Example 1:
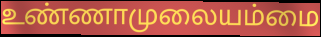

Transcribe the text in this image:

உண்ணாமுலையம்மை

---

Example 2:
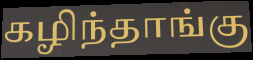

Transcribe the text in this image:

கழிந்தாங்கு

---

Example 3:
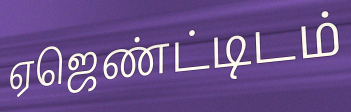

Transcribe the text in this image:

ஏஜெண்ட்டிடம்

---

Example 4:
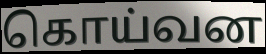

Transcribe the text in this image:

கொய்வன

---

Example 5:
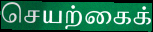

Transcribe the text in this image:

செயற்கைக்